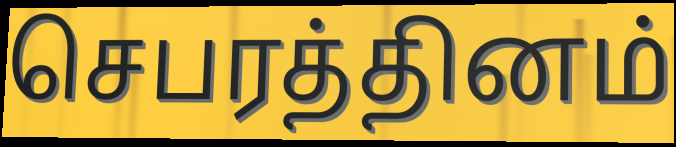
செபரத்தினம்